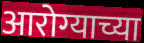
आरोग्याच्या